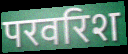
परवरिश